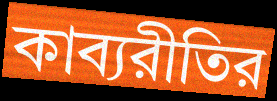
কাব্যরীতির